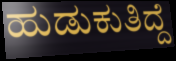
ಹುಡುಕುತಿದ್ದೆ